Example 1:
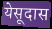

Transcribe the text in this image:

येसूदास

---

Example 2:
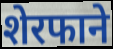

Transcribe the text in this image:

शेरफाने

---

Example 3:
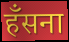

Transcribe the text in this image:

हँसना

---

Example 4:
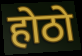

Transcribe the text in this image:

होठो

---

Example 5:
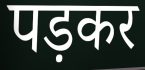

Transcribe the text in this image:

पड़कर